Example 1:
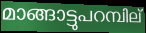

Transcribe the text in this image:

മാങ്ങാട്ടുപറമ്പില്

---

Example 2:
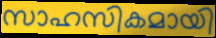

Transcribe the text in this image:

സാഹസികമായി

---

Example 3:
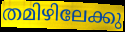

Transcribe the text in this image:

തമിഴിലേക്കു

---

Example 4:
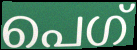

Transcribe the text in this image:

പെഗ്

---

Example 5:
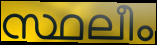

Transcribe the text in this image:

സ്ഥലീം